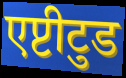
एप्टीटुड